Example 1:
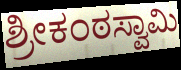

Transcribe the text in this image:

ಶ್ರೀಕಂಠಸ್ವಾಮಿ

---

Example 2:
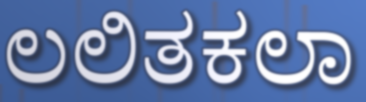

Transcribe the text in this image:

ಲಲಿತಕಲಾ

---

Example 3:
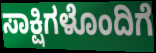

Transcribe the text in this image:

ಸಾಕ್ಷಿಗಳೊಂದಿಗೆ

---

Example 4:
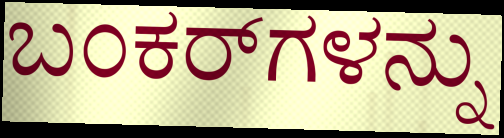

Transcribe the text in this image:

ಬಂಕರ್‌ಗಳನ್ನು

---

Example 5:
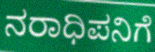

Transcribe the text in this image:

ನರಾಧಿಪನಿಗೆ